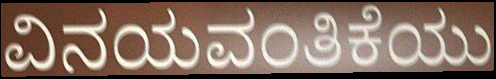
ವಿನಯವಂತಿಕೆಯು